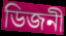
ডিজনী